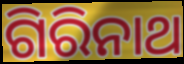
ଗିରିନାଥ